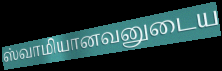
ஸ்வாமியானவனுடைய